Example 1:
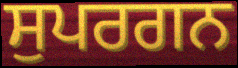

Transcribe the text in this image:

ਸੁਪਰਗਨ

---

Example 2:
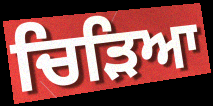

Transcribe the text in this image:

ਚਿੜਿਆ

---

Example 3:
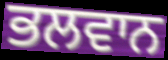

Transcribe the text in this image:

ਭਲਵਾਨ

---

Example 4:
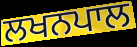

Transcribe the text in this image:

ਲਖਨਪਾਲ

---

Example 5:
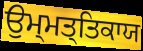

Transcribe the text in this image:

ਉਮ੍ਮਤ੍ਤਿਕਾਯ